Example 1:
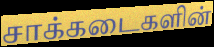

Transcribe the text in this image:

சாக்கடைகளின்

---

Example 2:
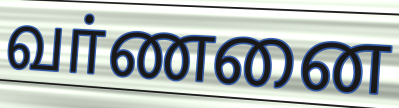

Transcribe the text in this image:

வர்ணனை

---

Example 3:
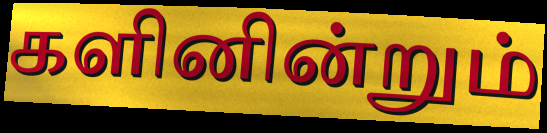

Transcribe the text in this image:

களினின்றும்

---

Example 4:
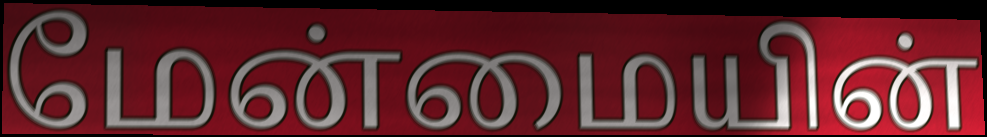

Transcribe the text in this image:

மேன்மையின்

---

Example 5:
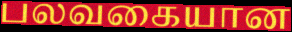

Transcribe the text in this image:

பலவகையான